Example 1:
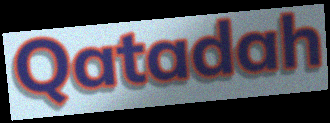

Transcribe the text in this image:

Qatadah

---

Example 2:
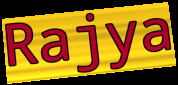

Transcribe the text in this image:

Rajya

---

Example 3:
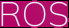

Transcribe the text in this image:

ROS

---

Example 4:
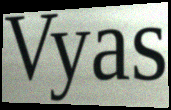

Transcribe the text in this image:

Vyas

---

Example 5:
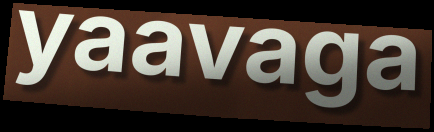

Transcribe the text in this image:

yaavaga